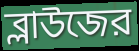
ব্লাউজের